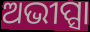
ଅଭୀପ୍ସା